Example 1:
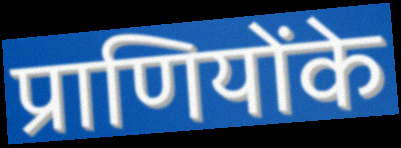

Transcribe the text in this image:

प्राणियोंके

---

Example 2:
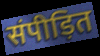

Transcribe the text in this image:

संपीड़ित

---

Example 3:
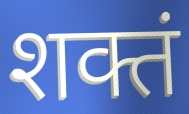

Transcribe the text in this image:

शक्तं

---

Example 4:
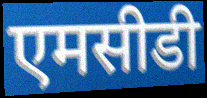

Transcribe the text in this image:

एमसीडी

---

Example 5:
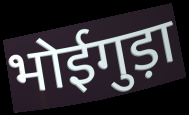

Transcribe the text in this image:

भोईगुड़ा